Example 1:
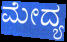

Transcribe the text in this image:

ಮೇದ್ಯ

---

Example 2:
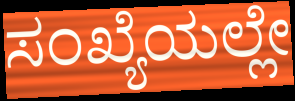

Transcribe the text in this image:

ಸಂಖ್ಯೆಯಲ್ಲೇ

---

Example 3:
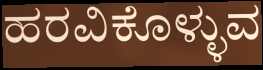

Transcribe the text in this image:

ಹರವಿಕೊಳ್ಳುವ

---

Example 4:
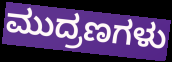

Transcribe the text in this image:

ಮುದ್ರಣಗಳು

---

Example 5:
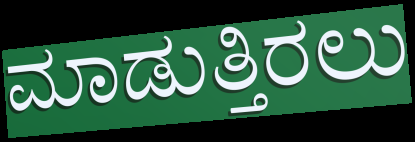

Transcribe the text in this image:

ಮಾಡುತ್ತಿರಲು